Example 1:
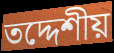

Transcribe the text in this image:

তদ্দেশীয়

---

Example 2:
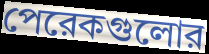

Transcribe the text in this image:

পেরেকগুলোর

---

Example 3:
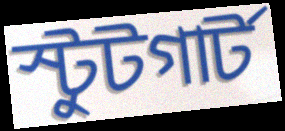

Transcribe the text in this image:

স্টুটগার্ট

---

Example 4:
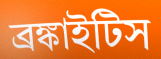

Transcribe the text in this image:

ব্রঙ্কাইটিস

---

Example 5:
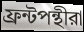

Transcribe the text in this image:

ফ্রন্টপন্থীরা